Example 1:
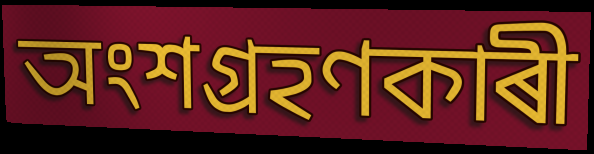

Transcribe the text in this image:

অংশগ্ৰহণকাৰী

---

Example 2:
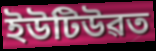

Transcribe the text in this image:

ইউটিউৱত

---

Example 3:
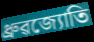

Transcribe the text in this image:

ধ্ৰুৱজ্যোতি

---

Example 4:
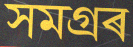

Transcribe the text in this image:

সমগ্ৰৰ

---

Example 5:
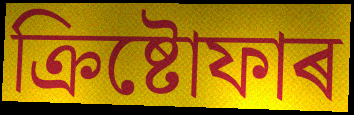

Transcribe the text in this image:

ক্ৰিষ্টোফাৰ